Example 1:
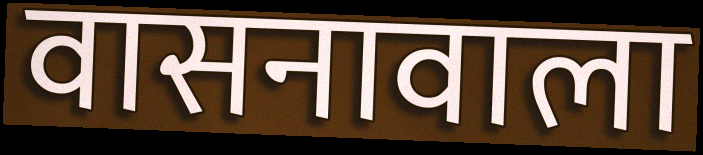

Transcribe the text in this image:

वासनावाला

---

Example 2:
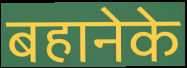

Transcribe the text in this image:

बहानेके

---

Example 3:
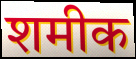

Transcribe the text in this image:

शमीक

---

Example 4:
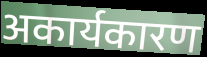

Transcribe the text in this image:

अकार्यकारण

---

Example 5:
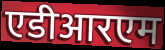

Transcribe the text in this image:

एडीआरएम